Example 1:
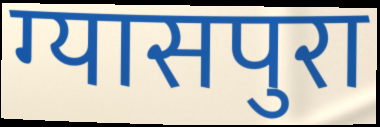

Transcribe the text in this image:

ग्यासपुरा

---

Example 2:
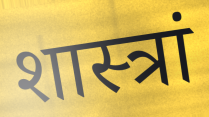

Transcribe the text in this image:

शास्त्रां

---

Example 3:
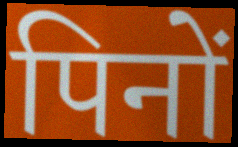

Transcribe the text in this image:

पिनों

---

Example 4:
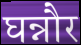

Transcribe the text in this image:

घन्नौर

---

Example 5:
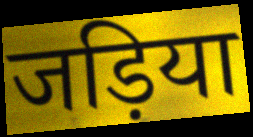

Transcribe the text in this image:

जड़िया